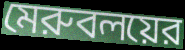
মেরুবলয়ের